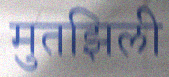
मुतझिली